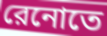
রেনোতে